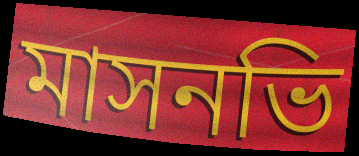
মাসনভি